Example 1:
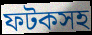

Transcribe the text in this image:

ফটকসহ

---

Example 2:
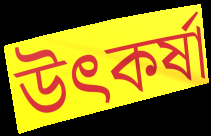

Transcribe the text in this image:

উৎকর্ষা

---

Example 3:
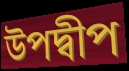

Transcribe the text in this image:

উপদ্বীপ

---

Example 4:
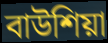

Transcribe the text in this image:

বাউশিয়া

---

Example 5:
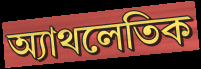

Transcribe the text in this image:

অ্যাথলেতিক